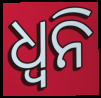
ଧ୍ୱନି